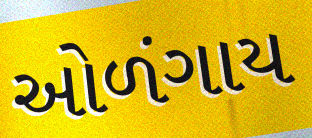
ઓળંગાય